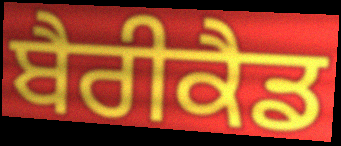
ਬੈਰੀਕੈਡ